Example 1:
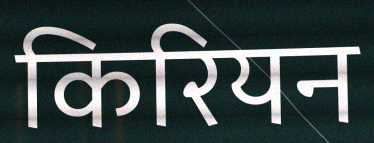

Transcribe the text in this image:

किरियन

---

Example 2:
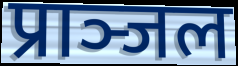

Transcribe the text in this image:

प्राञ्जल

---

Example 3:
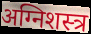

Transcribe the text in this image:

अग्निशस्त्र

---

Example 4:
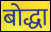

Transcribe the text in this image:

बोद्धा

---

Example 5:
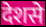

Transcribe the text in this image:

देशसे